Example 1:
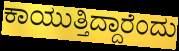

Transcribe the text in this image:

ಕಾಯುತ್ತಿದ್ದಾರೆಂದು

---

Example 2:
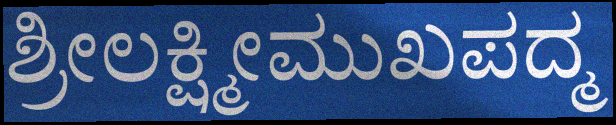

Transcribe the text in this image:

ಶ್ರೀಲಕ್ಷ್ಮೀಮುಖಪದ್ಮ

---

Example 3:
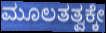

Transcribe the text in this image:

ಮೂಲತತ್ವಕ್ಕೇ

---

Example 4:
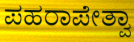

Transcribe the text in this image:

ಪಹರಾಪೇತ್ವಾ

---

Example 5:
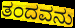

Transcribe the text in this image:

ತಂದವನು